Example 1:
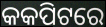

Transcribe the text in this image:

କକପିଟରେ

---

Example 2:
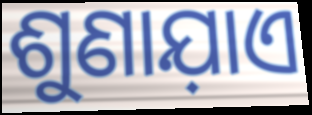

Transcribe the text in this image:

ଶୁଣାଯ଼ାଏ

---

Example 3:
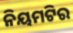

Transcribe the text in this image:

ନିୟମଟିର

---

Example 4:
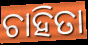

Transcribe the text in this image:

ଚାହିତା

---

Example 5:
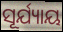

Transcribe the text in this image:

ସୂର୍ଯ୍ୟାୟ